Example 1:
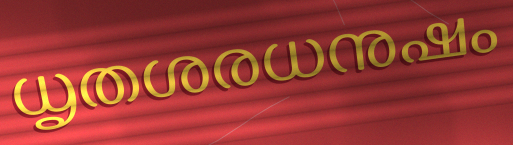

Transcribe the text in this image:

ധൃതശരധനുഷം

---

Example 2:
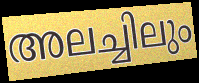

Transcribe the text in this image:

അലച്ചിലും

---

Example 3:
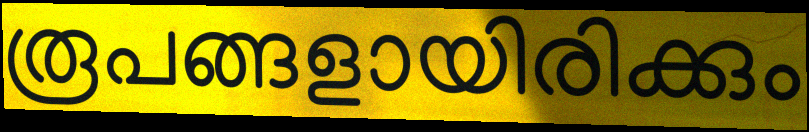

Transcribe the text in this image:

രൂപങ്ങളായിരിക്കും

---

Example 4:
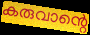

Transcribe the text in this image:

കരുവാന്റെ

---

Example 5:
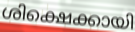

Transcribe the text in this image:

ശിക്ഷെക്കായി